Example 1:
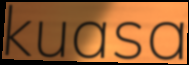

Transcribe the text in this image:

kuasa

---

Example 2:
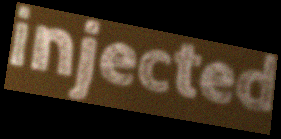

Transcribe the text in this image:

injected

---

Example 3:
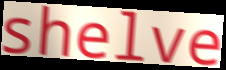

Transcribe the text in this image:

shelve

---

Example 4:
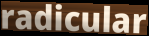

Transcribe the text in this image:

radicular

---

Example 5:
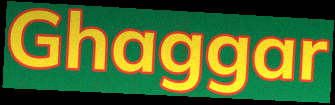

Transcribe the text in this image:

Ghaggar